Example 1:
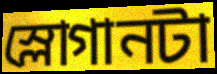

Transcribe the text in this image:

স্লোগানটা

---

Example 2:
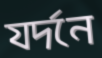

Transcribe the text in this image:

যর্দনে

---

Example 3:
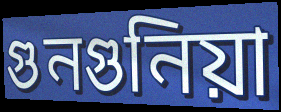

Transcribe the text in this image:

গুনগুনিয়া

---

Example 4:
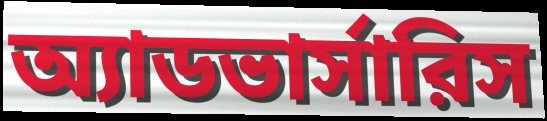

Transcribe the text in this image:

অ্যাডভার্সারিস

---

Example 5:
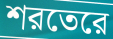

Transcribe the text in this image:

শরতেরে